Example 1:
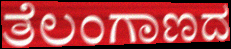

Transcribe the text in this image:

ತೆಲಂಗಾಣದ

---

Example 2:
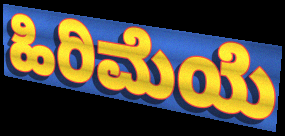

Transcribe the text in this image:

ಹಿರಿಮೆಯೆ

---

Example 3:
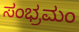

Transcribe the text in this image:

ಸಂಭ್ರಮಂ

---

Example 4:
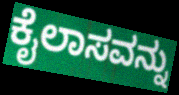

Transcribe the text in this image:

ಕೈಲಾಸವನ್ನು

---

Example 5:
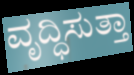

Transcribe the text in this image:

ವೃದ್ಧಿಸುತ್ತಾ